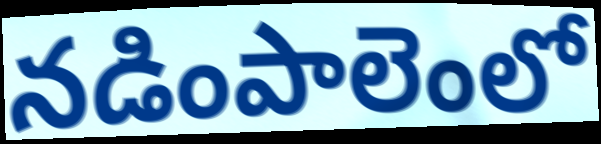
నడింపాలెంలో